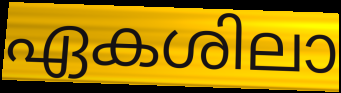
ഏകശിലാ